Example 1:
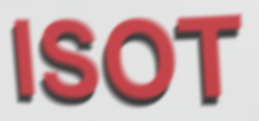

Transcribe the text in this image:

ISOT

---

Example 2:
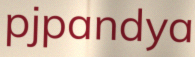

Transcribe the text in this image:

pjpandya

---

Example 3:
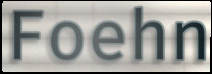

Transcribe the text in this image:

Foehn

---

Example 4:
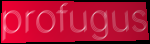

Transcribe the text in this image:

profugus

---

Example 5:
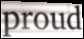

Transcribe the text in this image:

proud